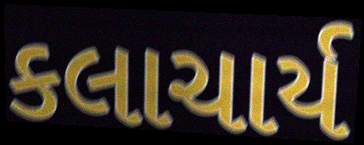
કલાચાર્ય